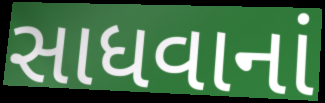
સાધવાનાં